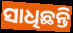
ସାଧିଛନ୍ତି